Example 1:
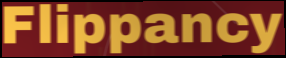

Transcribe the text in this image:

Flippancy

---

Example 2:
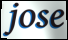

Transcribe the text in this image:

jose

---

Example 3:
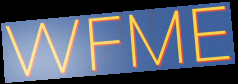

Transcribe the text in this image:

WFME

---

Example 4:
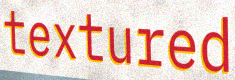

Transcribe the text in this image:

textured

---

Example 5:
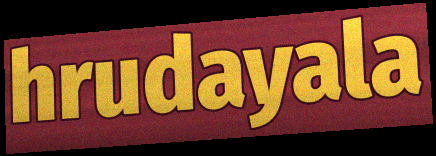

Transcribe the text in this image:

hrudayala